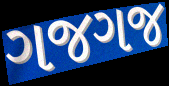
ગજગજ